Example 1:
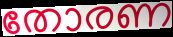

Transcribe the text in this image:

തോരണ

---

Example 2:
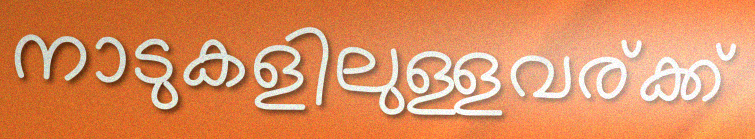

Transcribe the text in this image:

നാടുകളിലുള്ളവര്ക്ക്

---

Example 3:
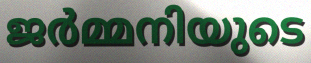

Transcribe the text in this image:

ജർമ്മനിയുടെ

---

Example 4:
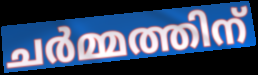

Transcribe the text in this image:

ചർമ്മത്തിന്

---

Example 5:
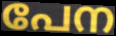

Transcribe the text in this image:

പേന